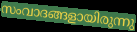
സംവാദങ്ങളായിരുന്നു